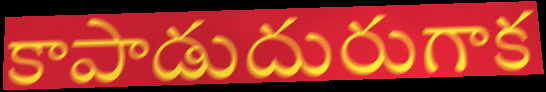
కాపాడుదురుగాక